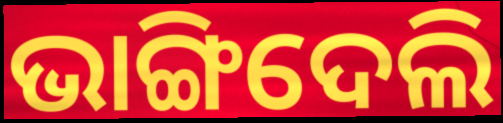
ଭାଙ୍ଗିଦେଲି